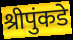
श्रीपुंकडे